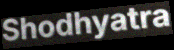
Shodhyatra